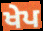
ਖੇਪ